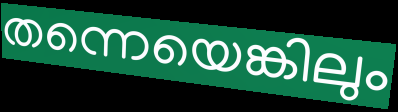
തന്നെയെങ്കിലും